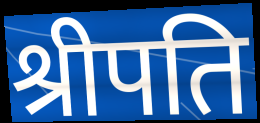
श्रीपति